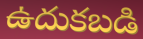
ఉదుకబడి